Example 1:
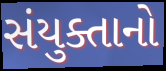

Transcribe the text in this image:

સંયુક્તાનો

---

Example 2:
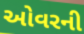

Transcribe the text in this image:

ઓવરની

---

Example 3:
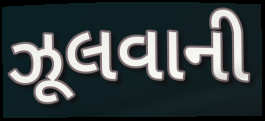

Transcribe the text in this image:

ઝૂલવાની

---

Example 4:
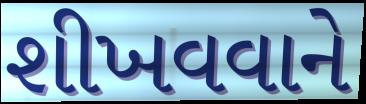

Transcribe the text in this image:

શીખવવાને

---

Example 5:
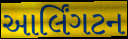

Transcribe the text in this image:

આર્લિંગટન